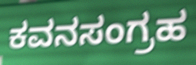
ಕವನಸಂಗ್ರಹ